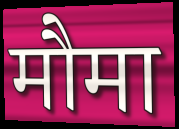
मौमा